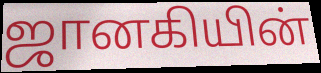
ஜானகியின்